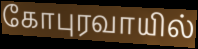
கோபுரவாயில்